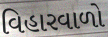
વિહારવાળો